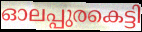
ഓലപ്പുരകെട്ടി